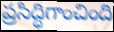
ప్రసిద్ధిగాంచింది